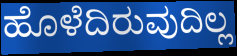
ಹೊಳೆದಿರುವುದಿಲ್ಲ